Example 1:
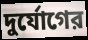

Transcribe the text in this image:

দুর্যোগের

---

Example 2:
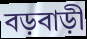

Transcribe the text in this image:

বড়বাড়ী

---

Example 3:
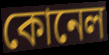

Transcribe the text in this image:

কোনেল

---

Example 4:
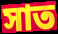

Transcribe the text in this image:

সাত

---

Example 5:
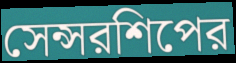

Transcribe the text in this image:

সেন্সরশিপের